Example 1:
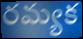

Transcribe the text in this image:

రమ్యక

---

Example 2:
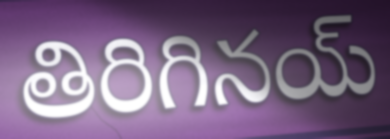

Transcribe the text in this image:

తిరిగినయ్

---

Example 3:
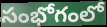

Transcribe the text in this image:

సంభోగంలో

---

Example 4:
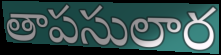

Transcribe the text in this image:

తాపసులార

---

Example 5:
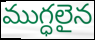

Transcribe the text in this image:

ముగ్ధలైన